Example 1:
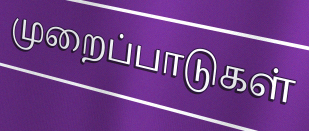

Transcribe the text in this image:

முறைப்பாடுகள்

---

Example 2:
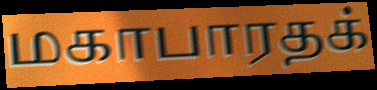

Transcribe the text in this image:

மகாபாரதக்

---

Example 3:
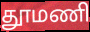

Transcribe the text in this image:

தூமணி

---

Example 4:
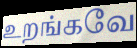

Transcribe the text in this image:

உறங்கவே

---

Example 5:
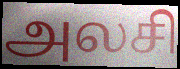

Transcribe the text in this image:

அலசி